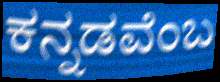
ಕನ್ನಡವೆಂಬ